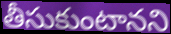
తీసుకుంటానని